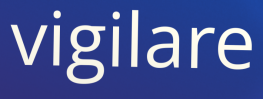
vigilare